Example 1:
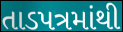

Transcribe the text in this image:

તાડપત્રમાંથી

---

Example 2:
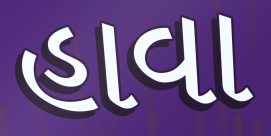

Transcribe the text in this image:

હાવા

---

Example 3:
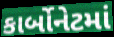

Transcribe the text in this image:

કાર્બોનેટમાં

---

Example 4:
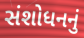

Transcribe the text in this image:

સંશોધનનું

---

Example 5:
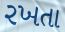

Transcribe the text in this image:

રખતા